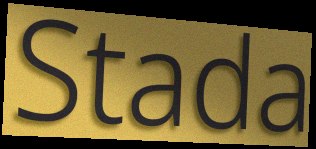
Stada